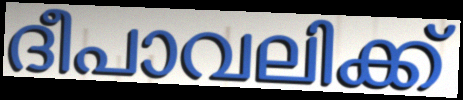
ദീപാവലിക്ക്